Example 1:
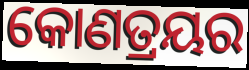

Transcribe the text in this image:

କୋଣତ୍ରୟର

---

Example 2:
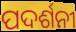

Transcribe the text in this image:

ପଦର୍ଶନୀ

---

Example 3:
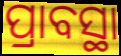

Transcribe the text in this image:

ପ୍ରାବସ୍ଥା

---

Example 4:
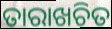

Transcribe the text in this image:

ତାରାଖଚିତ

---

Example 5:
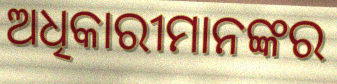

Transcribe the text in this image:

ଅଧିକାରୀମାନଙ୍କର